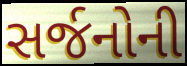
સર્જનોની